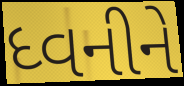
ધ્વનીને